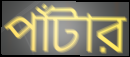
পাঁটার